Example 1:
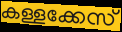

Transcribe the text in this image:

കള്ളക്കേസ്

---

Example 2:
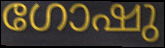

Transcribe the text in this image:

ഗോഷു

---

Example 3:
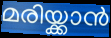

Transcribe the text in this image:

മരിയ്ക്കാൻ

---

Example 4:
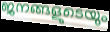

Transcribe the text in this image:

ജനങ്ങളുടെയും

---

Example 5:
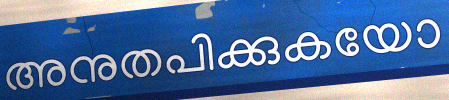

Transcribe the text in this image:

അനുതപിക്കുകയോ